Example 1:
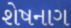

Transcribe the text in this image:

શેષનાગ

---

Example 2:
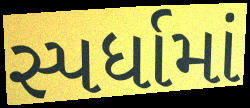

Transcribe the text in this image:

સ્પર્ધામાં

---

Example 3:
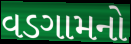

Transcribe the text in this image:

વડગામનો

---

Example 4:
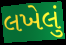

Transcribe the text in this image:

લખેલું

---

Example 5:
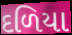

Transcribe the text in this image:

દળિયા